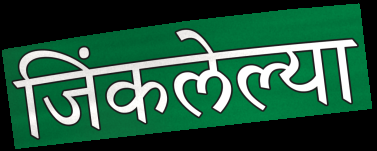
जिंकलेल्या